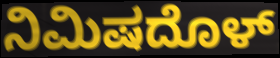
ನಿಮಿಷದೊಳ್